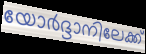
യോർദ്ദാനിലേക്ക്